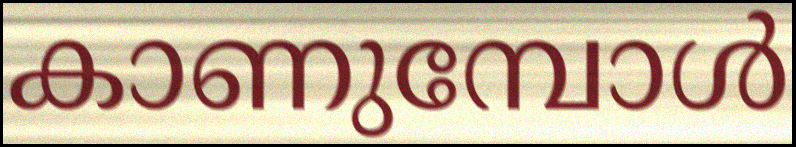
കാണുമ്പോൾ